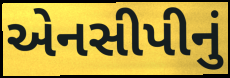
એનસીપીનું